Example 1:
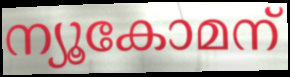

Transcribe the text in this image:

ന്യൂകോമന്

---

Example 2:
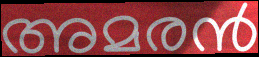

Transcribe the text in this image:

അമരൻ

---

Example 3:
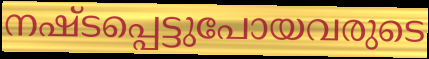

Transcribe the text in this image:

നഷ്ടപ്പെട്ടുപോയവരുടെ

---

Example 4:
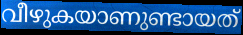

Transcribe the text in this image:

വീഴുകയാണുണ്ടായത്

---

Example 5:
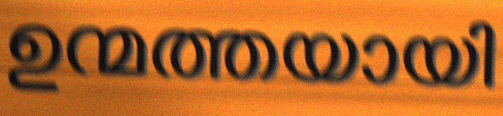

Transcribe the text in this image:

ഉന്മത്തയായി